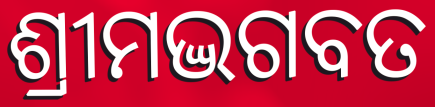
ଶ୍ରୀମଦ୍ଭଗବତ